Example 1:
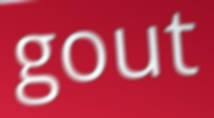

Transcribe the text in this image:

gout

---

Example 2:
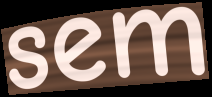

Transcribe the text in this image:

sem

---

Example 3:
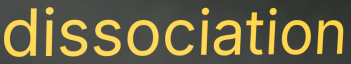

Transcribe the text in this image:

dissociation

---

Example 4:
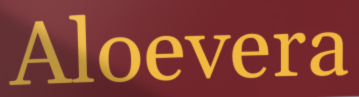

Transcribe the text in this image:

Aloevera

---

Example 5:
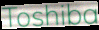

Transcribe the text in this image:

Toshiba